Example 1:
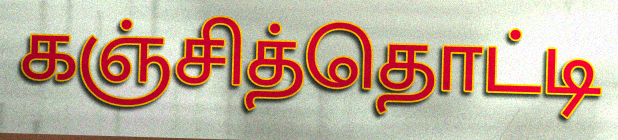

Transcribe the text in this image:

கஞ்சித்தொட்டி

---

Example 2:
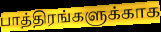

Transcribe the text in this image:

பாத்திரங்களுக்காக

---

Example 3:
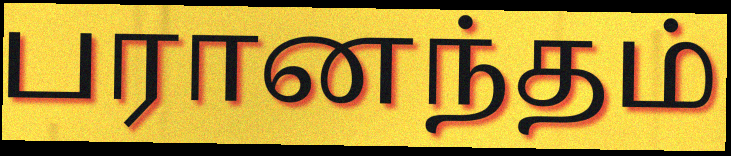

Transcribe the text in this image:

பரானந்தம்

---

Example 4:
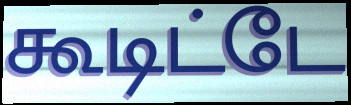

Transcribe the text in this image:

கூடிட்டே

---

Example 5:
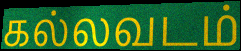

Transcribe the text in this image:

கல்லவடம்